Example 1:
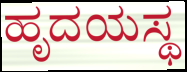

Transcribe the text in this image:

ಹೃದಯಸ್ಥ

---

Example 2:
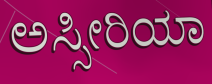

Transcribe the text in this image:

ಅಸ್ಸೀರಿಯಾ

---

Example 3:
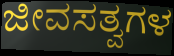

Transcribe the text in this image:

ಜೀವಸತ್ವಗಳ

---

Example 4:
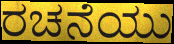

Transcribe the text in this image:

ರಚನೆಯು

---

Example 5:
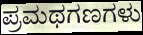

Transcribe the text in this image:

ಪ್ರಮಥಗಣಗಳು